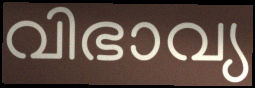
വിഭാവ്യ